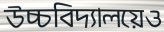
উচ্চবিদ্যালয়েও